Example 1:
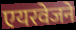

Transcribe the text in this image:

एयरवेजने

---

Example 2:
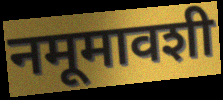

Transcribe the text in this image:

नमूमावशी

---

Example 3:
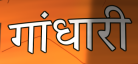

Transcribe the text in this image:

गांधारी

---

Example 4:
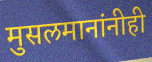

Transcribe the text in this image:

मुसलमानांनीही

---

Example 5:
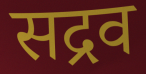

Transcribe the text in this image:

सद्रव